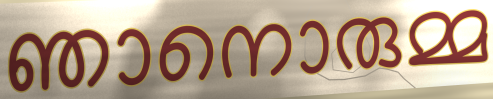
ഞാനൊരുമ്മ